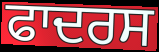
ਫਾਦਰਸ